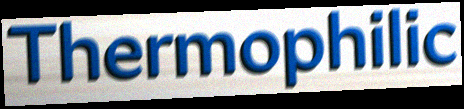
Thermophilic